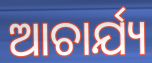
ଆଚାର୍ଯ୍ୟ